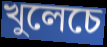
খুলেচে